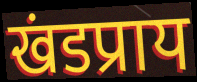
खंडप्राय